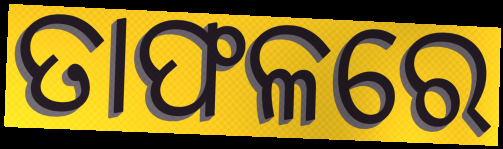
ତାଫଳରେ